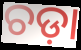
ଚଡ଼ା